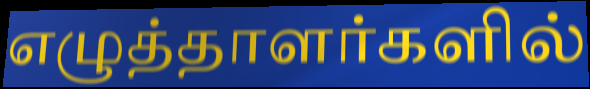
எழுத்தாளர்களில்